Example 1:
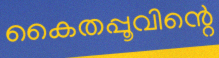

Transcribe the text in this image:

കൈതപ്പൂവിന്റെ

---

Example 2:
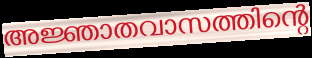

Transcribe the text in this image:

അജ്ഞാതവാസത്തിന്റെ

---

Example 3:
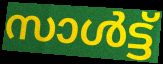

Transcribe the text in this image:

സാൾട്ട്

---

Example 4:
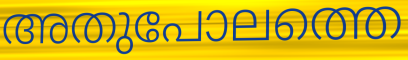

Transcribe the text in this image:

അതുപോലത്തെ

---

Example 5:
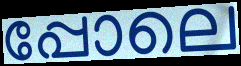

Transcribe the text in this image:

പ്പോലെ